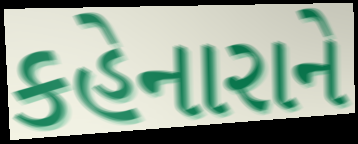
કહેનારાને